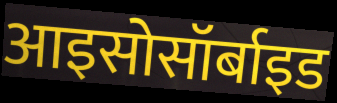
आइसोसॉर्बाइड